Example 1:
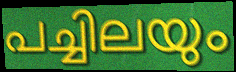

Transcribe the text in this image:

പച്ചിലയും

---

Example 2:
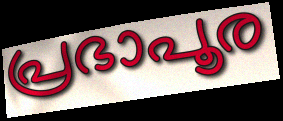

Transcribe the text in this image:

പ്രഭാപൂര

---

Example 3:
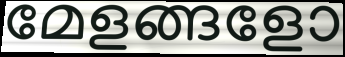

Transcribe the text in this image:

മേളങ്ങളോ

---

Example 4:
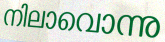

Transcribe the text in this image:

നിലാവൊന്നു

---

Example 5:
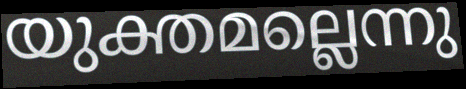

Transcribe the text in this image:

യുക്തമല്ലെന്നു